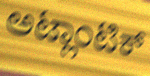
ಅಟ್ಲಾಂಟಿಕ್